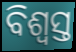
ବିଶ୍ବସ୍ତ